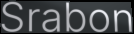
Srabon